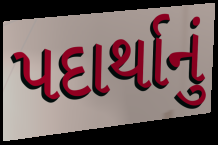
પદાર્થાનું